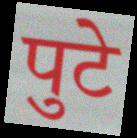
पुटे